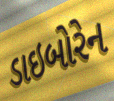
ડાઇબોરેન